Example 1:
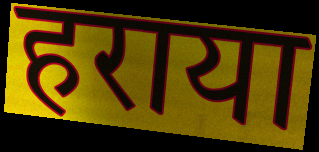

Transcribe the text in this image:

हराया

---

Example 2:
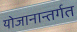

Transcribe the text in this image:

योजानान्तर्गत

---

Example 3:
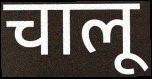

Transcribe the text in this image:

चालू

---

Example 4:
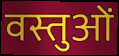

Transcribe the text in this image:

वस्‍तुओं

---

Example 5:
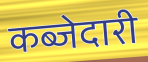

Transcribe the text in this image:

कब्जेदारी